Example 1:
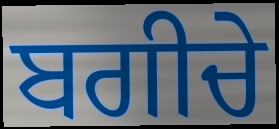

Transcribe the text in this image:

ਬਗੀਚੇ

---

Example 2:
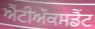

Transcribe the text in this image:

ਐਂਟੀਔਕਸਡੈਂਟ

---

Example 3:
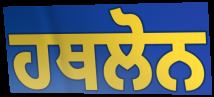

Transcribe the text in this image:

ਹਥਲੋਨ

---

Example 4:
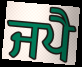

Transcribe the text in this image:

ਜਪੈ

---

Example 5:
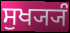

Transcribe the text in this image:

ਸੁਖ੍ਯ੍ਯੰ